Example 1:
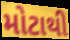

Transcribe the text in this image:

મોટાથી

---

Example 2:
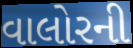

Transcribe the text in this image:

વાલોરની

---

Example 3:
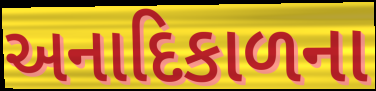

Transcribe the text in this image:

અનાદિકાળના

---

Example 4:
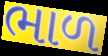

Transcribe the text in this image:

ભાળ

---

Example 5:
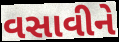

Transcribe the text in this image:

વસાવીને